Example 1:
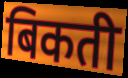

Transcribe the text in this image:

बिकती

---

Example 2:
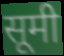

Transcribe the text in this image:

सूमी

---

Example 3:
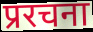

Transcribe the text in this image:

प्ररचना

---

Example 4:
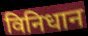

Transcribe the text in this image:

विनिधान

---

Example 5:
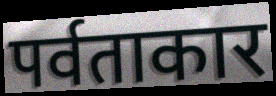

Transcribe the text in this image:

पर्वताकार